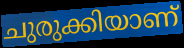
ചുരുക്കിയാണ്